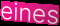
eines